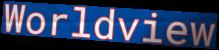
Worldview